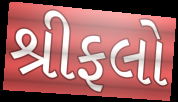
શ્રીફલો